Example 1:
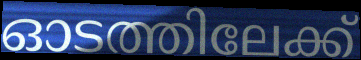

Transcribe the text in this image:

ഓടത്തിലേക്ക്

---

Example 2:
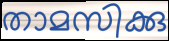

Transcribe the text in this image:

താമസിക്കു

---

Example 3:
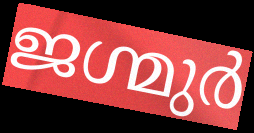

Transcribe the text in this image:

ജഗ്മുർ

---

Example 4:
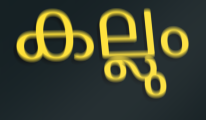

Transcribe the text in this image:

കല്ലും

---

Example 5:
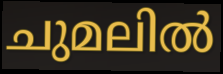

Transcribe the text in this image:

ചുമലിൽ